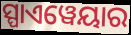
ସ୍ପାଏୱେୟାର